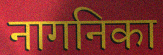
नागनिका